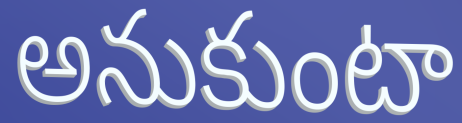
అనుకుంటా